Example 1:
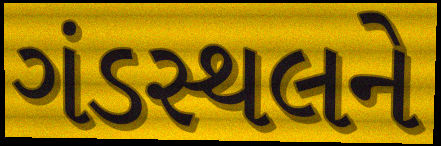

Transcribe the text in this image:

ગંડસ્થલને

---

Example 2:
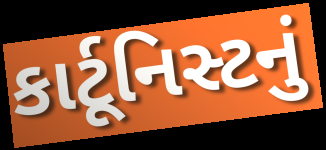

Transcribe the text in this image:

કાર્ટૂનિસ્ટનું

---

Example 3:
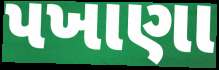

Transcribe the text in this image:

પખાણા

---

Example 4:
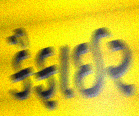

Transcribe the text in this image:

કૈફાઈર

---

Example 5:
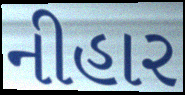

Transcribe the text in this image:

નીહાર